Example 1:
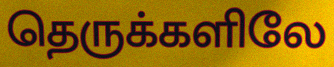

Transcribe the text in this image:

தெருக்களிலே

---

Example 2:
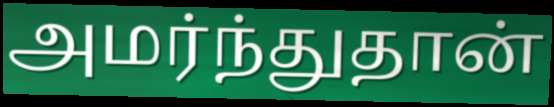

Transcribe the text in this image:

அமர்ந்துதான்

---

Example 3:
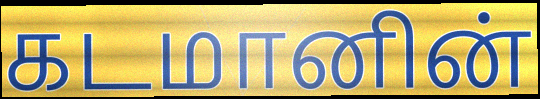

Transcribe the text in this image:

கடமானின்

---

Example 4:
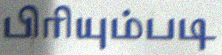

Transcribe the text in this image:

பிரியும்படி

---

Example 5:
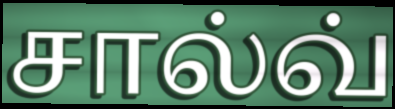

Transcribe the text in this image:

சால்வ்